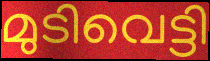
മുടിവെട്ടി